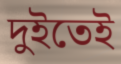
দুইতেই